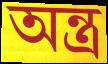
অন্ত্ৰ